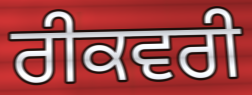
ਰੀਕਵਰੀ